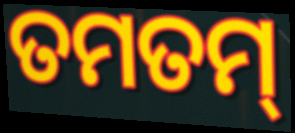
ତମତମ୍